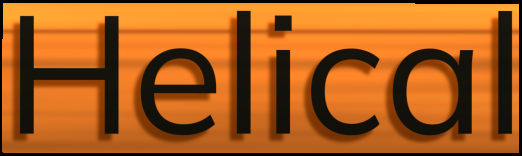
Helical